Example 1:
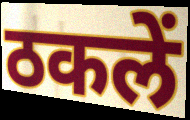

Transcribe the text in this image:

ठकलें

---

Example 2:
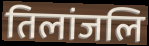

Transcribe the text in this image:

तिलांजलि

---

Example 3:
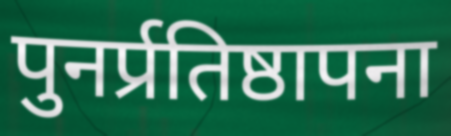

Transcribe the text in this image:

पुनर्प्रतिष्ठापना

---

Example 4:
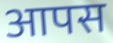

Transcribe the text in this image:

आपस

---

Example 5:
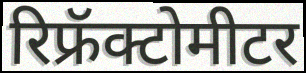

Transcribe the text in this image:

रिफ्रॅक्टोमीटर